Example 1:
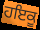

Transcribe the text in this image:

ਹਇਕੂ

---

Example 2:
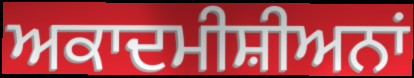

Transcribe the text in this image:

ਅਕਾਦਮੀਸ਼ੀਅਨਾਂ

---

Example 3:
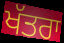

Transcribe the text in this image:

ਖੱਤਰਾ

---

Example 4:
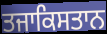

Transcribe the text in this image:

ਤਜਾਕਿਸਤਾਨ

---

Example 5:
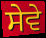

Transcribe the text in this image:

ਸੇਵੇ